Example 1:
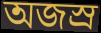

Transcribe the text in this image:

অজস্র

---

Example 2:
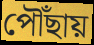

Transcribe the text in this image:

পৌঁছায়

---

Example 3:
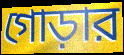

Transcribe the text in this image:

গোড়ার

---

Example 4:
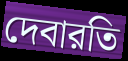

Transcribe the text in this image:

দেবারতি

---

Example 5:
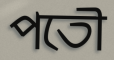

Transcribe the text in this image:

পতৌ